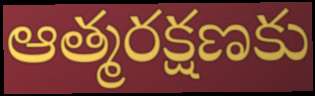
ఆత్మరక్షణకు